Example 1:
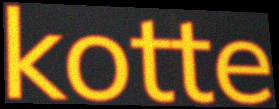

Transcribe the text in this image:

kotte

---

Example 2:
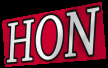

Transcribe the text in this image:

HON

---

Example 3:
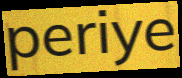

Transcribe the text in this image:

periye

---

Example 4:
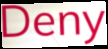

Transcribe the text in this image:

Deny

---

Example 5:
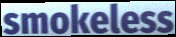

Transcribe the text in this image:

smokeless